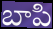
బాపి